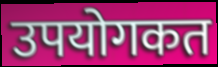
उपयोगकत